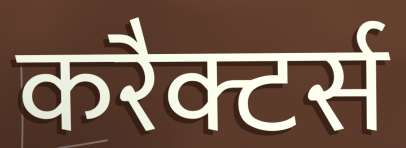
करैक्टर्स